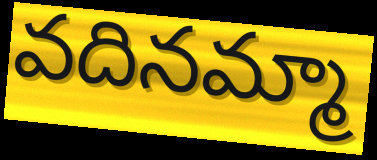
వదినమ్మా